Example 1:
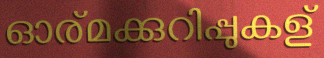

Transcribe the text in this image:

ഓര്മക്കുറിപ്പുകള്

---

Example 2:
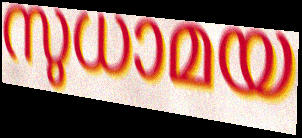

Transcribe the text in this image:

സുധാമയ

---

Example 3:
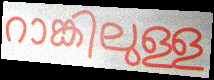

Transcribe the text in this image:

റാങ്കിലുള്ള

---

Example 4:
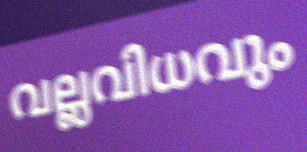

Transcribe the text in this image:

വല്ലവിധവും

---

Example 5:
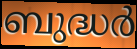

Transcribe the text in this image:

ബുദ്ധർ